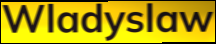
Wladyslaw